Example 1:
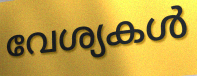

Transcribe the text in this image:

വേശ്യകൾ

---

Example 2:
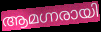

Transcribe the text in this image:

ആമഗ്നരായി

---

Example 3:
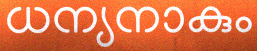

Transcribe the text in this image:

ധന്യനാകും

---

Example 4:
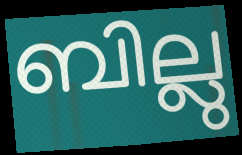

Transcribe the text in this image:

ബില്ലു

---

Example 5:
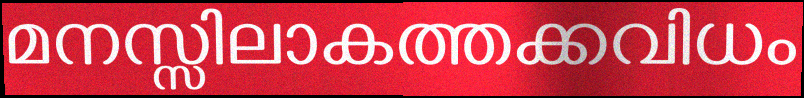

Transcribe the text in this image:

മനസ്സിലാകത്തക്കവിധം